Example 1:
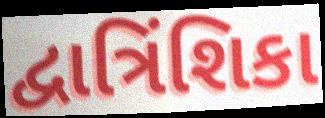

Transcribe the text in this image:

દ્વાત્રિંશિકા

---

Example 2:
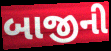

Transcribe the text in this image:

બાજીની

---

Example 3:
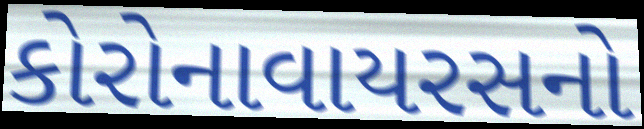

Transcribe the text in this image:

કોરોનાવાયરસનો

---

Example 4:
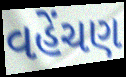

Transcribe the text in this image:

વહેંચણ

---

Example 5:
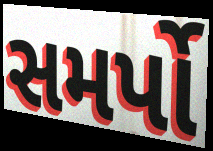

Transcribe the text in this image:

સમર્પો